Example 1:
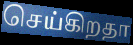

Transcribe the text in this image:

செய்கிறதா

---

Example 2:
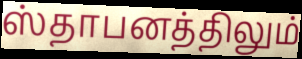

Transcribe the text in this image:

ஸ்தாபனத்திலும்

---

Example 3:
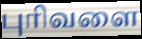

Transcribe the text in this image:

புரிவளை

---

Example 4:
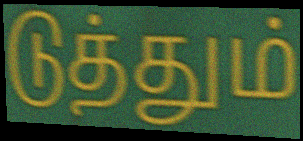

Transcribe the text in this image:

டுத்தும்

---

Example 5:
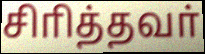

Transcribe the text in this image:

சிரித்தவர்